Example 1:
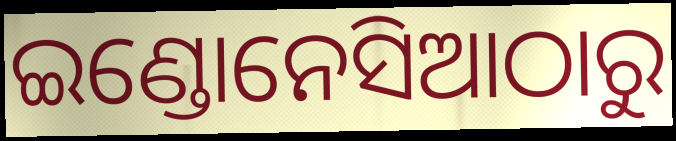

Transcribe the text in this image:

ଇଣ୍ଡୋନେସିଆଠାରୁ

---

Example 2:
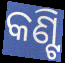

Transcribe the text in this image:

କଣ୍ଟି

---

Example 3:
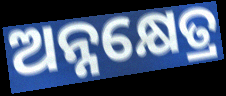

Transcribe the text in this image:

ଅନ୍ନକ୍ଷେତ୍ର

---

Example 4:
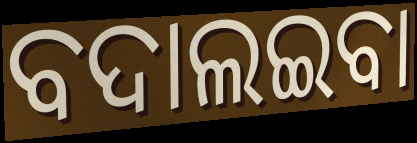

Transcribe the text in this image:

ବଦାଲଇବା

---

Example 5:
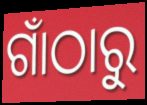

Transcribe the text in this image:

ଗାଁଠାରୁ